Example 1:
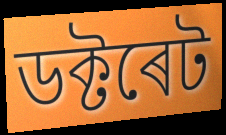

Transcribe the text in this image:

ডক্টৰেট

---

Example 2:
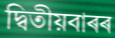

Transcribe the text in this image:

দ্বিতীয়বাৰৰ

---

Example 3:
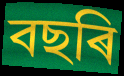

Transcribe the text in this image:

বছৰি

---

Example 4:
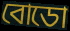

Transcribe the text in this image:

বোডো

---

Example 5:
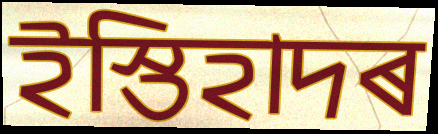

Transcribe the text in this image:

ইস্তিহাদৰ